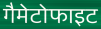
गैमेटोफाइट